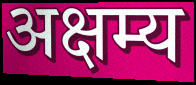
अक्षम्‍य